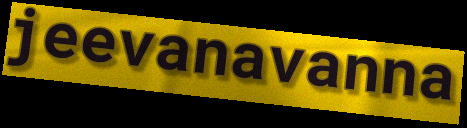
jeevanavanna